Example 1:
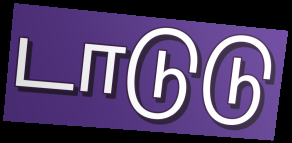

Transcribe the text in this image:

டாடுடு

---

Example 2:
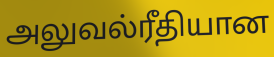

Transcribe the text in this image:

அலுவல்ரீதியான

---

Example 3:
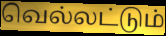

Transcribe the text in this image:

வெல்லட்டும்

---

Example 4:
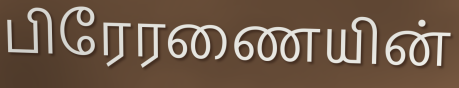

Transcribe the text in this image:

பிரேரணையின்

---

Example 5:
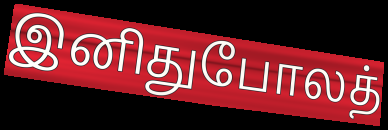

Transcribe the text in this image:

இனிதுபோலத்